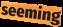
seeming